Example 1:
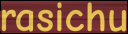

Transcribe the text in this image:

rasichu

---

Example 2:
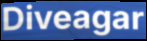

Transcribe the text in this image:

Diveagar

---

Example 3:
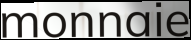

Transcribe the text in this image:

monnaie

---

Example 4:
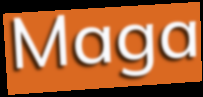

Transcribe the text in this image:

Maga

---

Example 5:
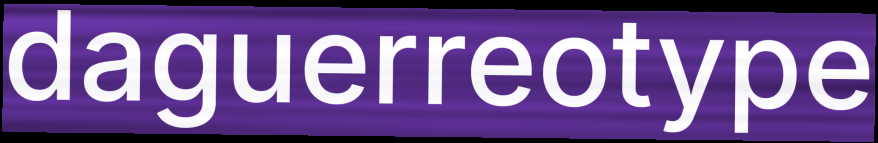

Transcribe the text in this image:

daguerreotype